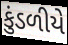
કુંડળીયે